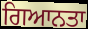
ਗਿਆਨਤਾ